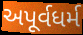
અપૂર્વધર્મ